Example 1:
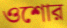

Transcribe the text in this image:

ওশোর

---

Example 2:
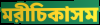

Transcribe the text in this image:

মরীচিকাসম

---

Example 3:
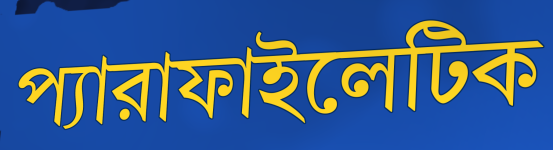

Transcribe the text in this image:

প্যারাফাইলেটিক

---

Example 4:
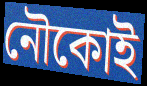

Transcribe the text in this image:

নৌকোই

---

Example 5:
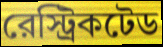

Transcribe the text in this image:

রেস্ট্রিকটেড